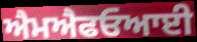
ਐਮਐਫਓਆਈ